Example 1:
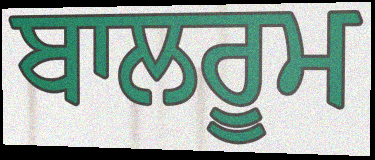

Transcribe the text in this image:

ਬਾਲਰੂਮ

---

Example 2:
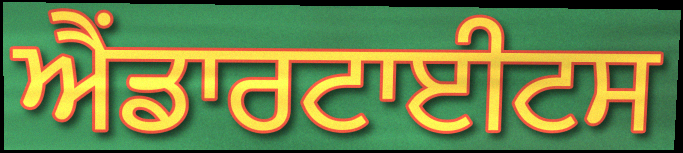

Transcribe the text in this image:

ਐਂਡਾਰਟਾਈਟਸ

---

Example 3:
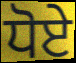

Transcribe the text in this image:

ਧੋਏ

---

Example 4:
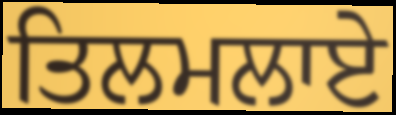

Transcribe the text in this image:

ਤਿਲਮਲਾਏ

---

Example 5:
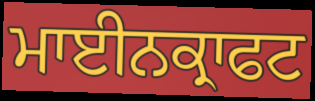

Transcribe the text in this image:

ਮਾਈਨਕ੍ਰਾਫਟ